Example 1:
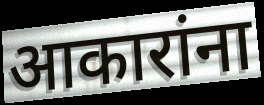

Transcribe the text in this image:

आकारांना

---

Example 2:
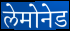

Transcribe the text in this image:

लेमोनेड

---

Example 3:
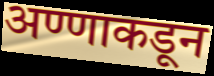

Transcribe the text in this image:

अण्णाकडून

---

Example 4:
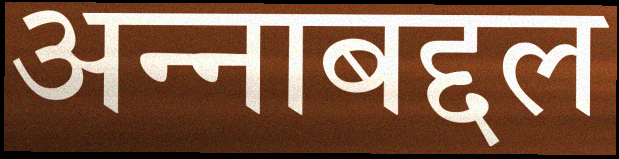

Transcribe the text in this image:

अन्‍नाबद्दल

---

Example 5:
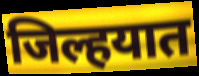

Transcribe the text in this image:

जिल्हयात